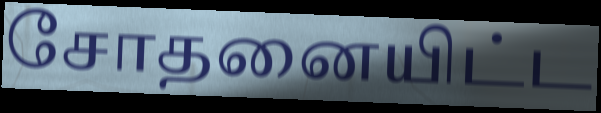
சோதனையிட்ட